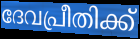
ദേവപ്രീതിക്ക്